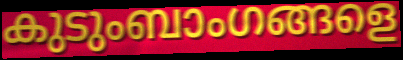
കുടുംബാംഗങ്ങളെ